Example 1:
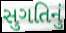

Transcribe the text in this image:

સુગતિનું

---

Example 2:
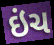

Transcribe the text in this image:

ઇંચ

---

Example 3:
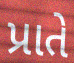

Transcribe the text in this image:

પ્રાતે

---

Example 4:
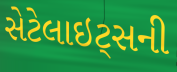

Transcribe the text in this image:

સેટેલાઇટ્સની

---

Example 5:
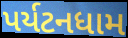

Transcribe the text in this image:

પર્યટનધામ